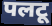
पलटू